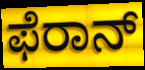
ಫೆರಾನ್